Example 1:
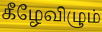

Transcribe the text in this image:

கீழேவிழும்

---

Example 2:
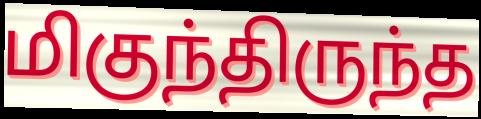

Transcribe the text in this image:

மிகுந்திருந்த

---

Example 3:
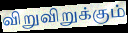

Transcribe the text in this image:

விறுவிறுக்கும்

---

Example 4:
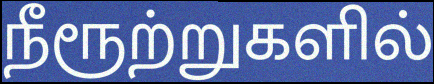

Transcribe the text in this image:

நீரூற்றுகளில்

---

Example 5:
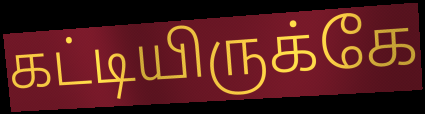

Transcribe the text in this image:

கட்டியிருக்கே